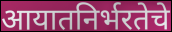
आयातनिर्भरतेचे